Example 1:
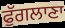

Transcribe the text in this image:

ਫੁੱਗਲਾਣਾ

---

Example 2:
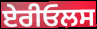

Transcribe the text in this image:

ਏਰੀਓਲਸ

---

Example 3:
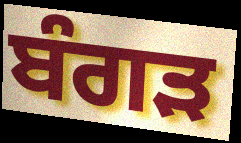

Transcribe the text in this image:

ਬੰਗੜ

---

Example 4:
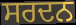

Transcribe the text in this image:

ਸਰਦਨ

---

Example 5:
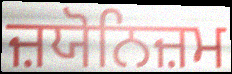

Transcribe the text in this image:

ਜ਼ਯੋਨਿਜ਼ਮ